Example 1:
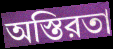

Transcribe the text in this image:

অস্তিরতা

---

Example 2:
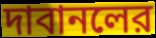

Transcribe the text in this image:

দাবানলের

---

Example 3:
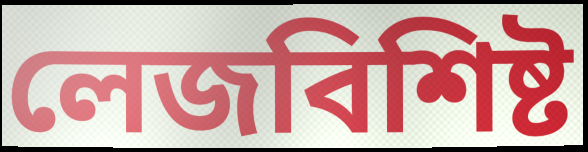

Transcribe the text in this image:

লেজবিশিষ্ট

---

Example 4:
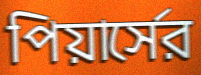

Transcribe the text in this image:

পিয়ার্সের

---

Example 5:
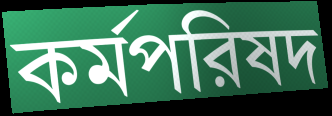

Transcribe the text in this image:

কর্মপরিষদ